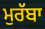
ਮੁਰੱਬਾ